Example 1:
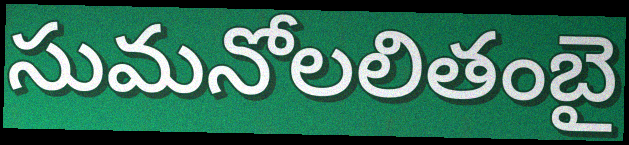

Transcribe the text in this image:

సుమనోలలితంబై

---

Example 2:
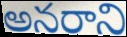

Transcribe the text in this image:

అనరాని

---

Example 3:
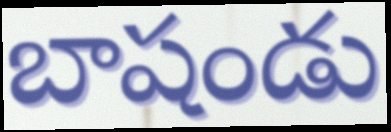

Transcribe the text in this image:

బాషండు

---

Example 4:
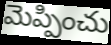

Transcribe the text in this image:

మెప్పించు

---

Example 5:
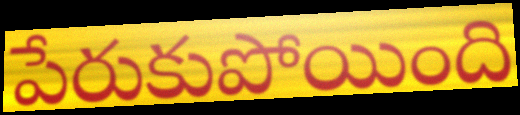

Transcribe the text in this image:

పేరుకుపోయింది